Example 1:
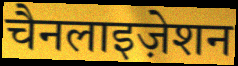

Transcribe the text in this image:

चैनलाइज़ेशन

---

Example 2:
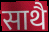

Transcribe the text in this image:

साथै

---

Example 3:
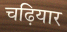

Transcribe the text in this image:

चढ़ियार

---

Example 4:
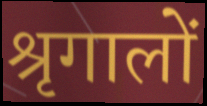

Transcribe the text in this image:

श्रृगालों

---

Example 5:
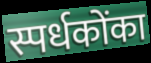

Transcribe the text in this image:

स्पर्धकोंका